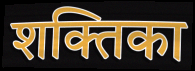
शक्तिका